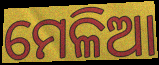
ମେଳିଆ